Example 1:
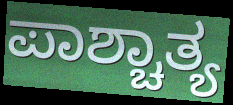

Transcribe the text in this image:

ಪಾಶ್ಚಾತ್ಯ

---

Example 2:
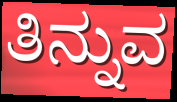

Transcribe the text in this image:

ತಿನ್ನುವ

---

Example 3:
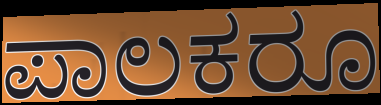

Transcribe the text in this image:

ಪಾಲಕರೂ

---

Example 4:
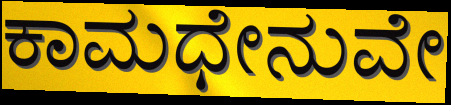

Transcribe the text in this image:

ಕಾಮಧೇನುವೇ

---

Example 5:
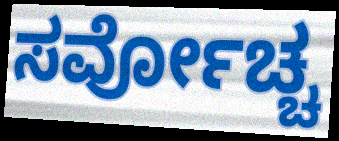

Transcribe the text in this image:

ಸರ್ವೋಚ್ಚ